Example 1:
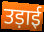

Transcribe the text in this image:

उड़ाई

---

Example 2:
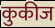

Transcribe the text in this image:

कुकीज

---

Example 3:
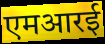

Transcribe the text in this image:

एमआरई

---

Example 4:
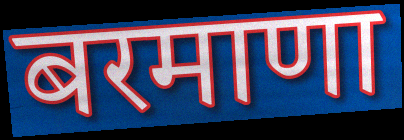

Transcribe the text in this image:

बरमाणा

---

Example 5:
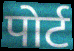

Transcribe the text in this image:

पोर्ट